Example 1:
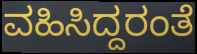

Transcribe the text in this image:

ವಹಿಸಿದ್ದರಂತೆ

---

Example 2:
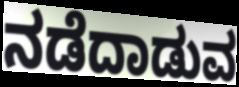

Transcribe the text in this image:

ನಡೆದಾಡುವ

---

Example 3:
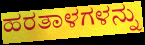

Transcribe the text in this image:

ಹರತಾಳಗಳನ್ನು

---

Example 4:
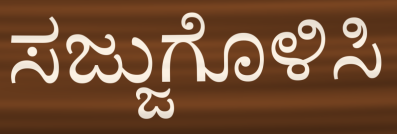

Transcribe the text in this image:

ಸಜ್ಜುಗೊಳಿಸಿ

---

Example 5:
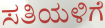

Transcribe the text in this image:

ಸತಿಯಳಿಗೆ